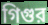
গিগুর